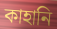
কাহানি